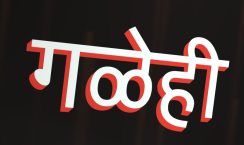
गळेही